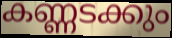
കണ്ണടക്കും